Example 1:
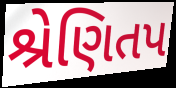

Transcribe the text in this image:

શ્રેણિતપ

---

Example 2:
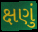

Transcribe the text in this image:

ક્ષણું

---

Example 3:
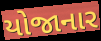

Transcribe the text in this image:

યોજાનાર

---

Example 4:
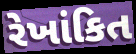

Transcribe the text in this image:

રેખાંકિત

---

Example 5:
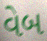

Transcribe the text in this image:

વેબ